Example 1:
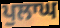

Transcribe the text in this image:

ਪੁਲਾਘ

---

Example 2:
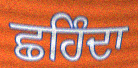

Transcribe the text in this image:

ਛਹਿੰਦਾ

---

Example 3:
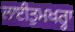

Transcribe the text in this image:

ਲਾਈਤੁਮਖਰ੍ਹਾ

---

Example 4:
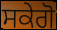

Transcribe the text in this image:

ਸਕੇਗੋ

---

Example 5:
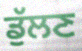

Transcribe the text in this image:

ਡੁੱਲਣ